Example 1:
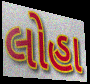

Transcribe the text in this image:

લોહા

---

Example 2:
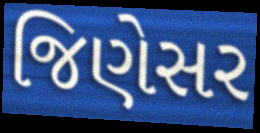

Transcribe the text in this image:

જિણેસર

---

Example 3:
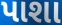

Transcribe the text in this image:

પાશા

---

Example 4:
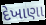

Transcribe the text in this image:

દેખાણા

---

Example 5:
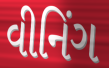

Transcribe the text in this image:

વીનિંગ